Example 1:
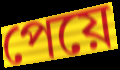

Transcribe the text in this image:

পেয়ে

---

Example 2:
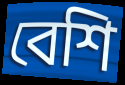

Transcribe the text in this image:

বেশি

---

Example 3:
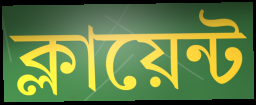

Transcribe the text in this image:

ক্লায়েন্ট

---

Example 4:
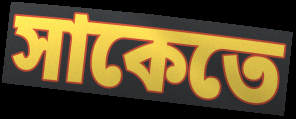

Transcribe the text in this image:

সাকেতে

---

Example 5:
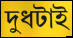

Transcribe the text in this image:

দুধটাই